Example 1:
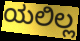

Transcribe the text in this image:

ಯಲಿಲ್ಲ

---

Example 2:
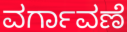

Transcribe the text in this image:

ವರ್ಗಾವಣೆ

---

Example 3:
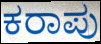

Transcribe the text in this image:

ಕರಾಪು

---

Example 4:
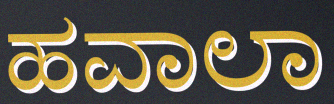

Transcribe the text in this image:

ಹವಾಲಾ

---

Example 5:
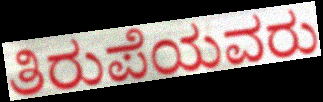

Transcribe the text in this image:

ತಿರುಪೆಯವರು